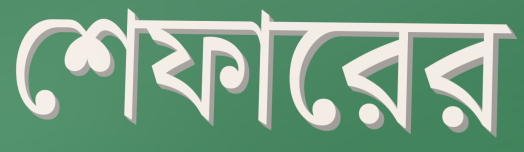
শেফারের